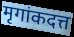
मृगांकदत्त